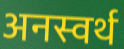
अनस्वर्थ